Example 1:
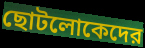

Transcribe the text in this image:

ছোটলোকেদের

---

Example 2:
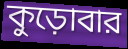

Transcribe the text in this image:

কুড়োবার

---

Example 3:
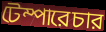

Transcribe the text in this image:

টেম্পারেচার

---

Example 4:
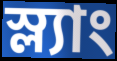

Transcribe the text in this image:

স্ল্যাং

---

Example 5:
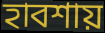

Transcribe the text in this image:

হাবশায়